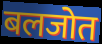
बलजोत